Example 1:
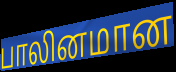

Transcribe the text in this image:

பாலினமான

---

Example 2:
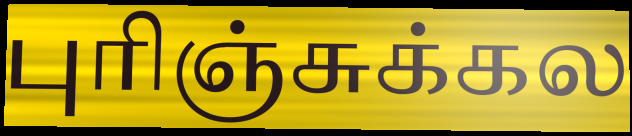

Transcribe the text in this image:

புரிஞ்சுக்கல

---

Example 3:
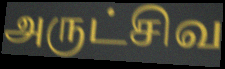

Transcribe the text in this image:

அருட்சிவ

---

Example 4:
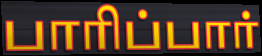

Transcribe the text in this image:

பாரிப்பார்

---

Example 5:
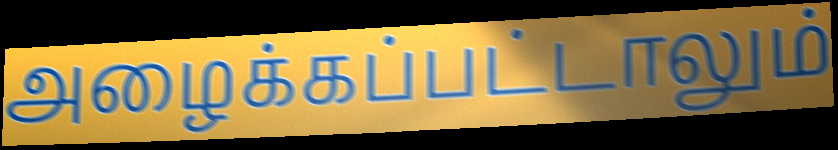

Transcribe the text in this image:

அழைக்கப்பட்டாலும்